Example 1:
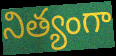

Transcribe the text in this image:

నిత్యంగా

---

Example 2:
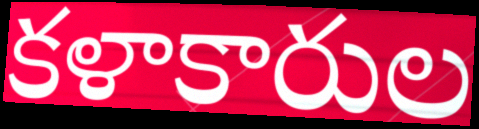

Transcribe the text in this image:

కళాకారుల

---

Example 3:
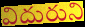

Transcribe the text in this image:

విదురుని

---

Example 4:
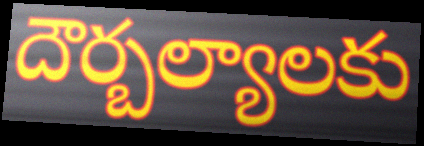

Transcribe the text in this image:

దౌర్బల్యాలకు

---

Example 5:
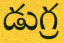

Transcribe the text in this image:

డుగ్ర